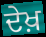
ਦੇਖ਼